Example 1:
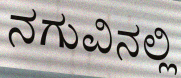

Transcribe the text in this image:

ನಗುವಿನಲ್ಲಿ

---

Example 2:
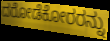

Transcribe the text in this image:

ದರೋಡೆಕೋರರನ್ನು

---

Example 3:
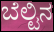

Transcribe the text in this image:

ಬೆಲ್ಟಿನ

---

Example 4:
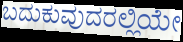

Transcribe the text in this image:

ಬದುಕುವುದರಲ್ಲಿಯೇ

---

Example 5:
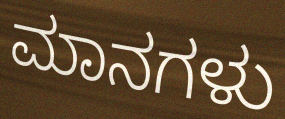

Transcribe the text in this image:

ಮಾನಗಳು